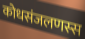
कोधसंजलणस्स